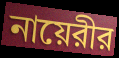
নায়েরীর